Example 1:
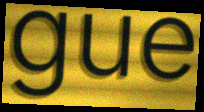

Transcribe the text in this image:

gue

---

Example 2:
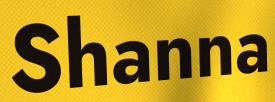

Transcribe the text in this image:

Shanna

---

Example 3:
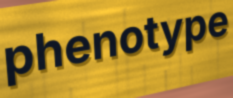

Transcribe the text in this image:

phenotype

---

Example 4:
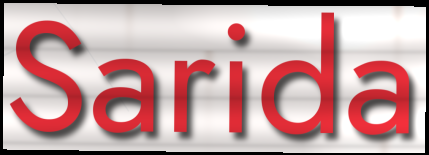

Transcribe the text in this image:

Sarida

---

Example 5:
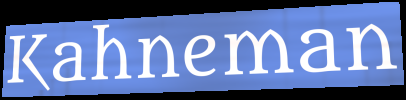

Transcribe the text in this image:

Kahneman